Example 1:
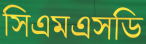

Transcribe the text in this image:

সিএমএসডি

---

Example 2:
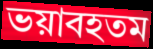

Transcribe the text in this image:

ভয়াবহতম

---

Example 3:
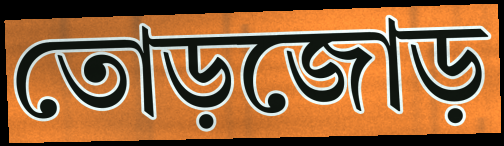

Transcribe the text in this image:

তোড়জোড়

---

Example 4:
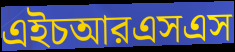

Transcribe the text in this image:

এইচআরএসএস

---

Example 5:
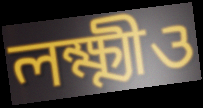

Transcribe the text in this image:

লক্ষ্মীও